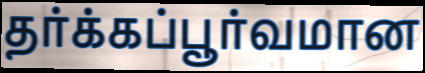
தர்க்கப்பூர்வமான